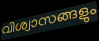
വിശ്വാസങ്ങളും